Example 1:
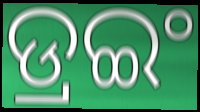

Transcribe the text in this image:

ଡ୍ରଇଂ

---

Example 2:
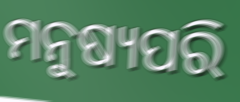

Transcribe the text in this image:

ମନୁଷ୍ୟପରି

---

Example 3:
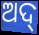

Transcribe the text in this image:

ଅଦ୍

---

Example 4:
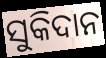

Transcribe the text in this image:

ସୁକିଦାନ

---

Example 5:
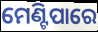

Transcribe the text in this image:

ମେଣ୍ଟିପାରେ